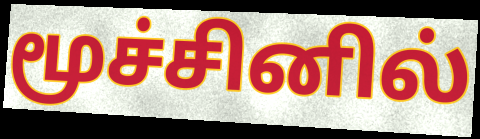
மூச்சினில்